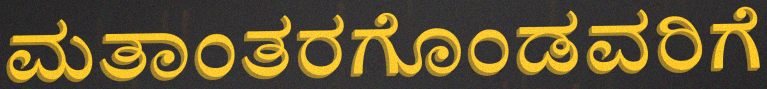
ಮತಾಂತರಗೊಂಡವರಿಗೆ